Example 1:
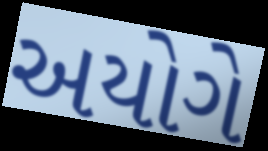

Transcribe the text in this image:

અયોગે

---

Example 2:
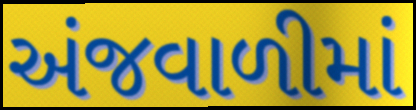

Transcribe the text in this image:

અંજવાળીમાં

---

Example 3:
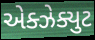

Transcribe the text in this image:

એક્ઝેક્યુટ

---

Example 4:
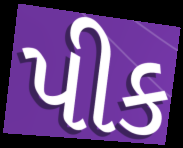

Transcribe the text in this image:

પીક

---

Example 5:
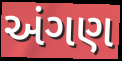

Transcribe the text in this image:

અંગણ